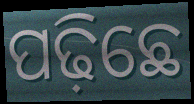
ପଢ଼ିଛେ